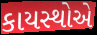
કાયસ્થોએ